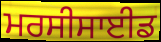
ਮਰਸੀਸਾਈਡ